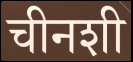
चीनशी